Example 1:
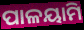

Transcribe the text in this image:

ପାଳୟାମି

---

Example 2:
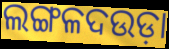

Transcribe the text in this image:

ଲଙ୍ଗଳଦଉଡ଼ା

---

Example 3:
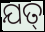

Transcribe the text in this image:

ଯତ୍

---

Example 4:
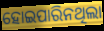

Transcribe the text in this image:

ହୋଇପାରିନଥିଲା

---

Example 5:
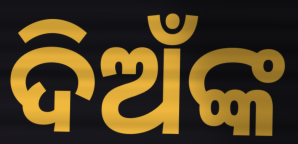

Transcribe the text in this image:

ଦିଅଁଙ୍କ